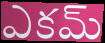
ఎకమ్